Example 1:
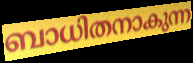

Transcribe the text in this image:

ബാധിതനാകുന്ന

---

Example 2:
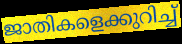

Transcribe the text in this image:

ജാതികളെക്കുറിച്ച്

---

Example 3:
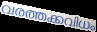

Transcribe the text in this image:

വരത്തക്കവിധം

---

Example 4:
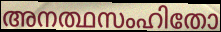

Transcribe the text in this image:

അനത്ഥസംഹിതോ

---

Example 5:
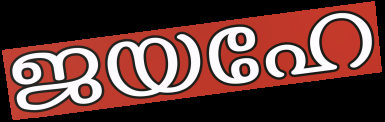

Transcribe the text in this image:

ജയഹേ